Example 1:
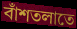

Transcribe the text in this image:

বাঁশতলাতে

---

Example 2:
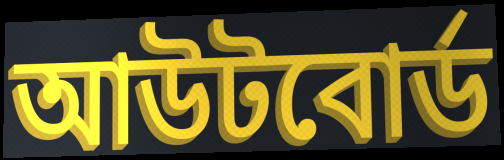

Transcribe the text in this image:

আউটবোর্ড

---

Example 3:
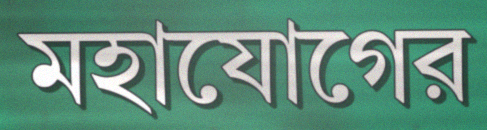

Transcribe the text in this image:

মহাযোগের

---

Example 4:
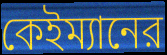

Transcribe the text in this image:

কেইম্যানের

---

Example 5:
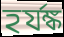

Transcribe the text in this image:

হর্যঙ্ক